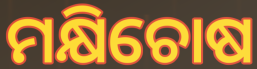
ମକ୍ଷିଚୋଷ